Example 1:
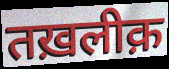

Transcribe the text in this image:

तख़लीक़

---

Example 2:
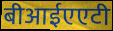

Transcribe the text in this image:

बीआईएएटी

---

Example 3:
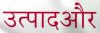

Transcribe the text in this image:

उत्पादऔर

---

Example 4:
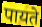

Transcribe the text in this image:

पायते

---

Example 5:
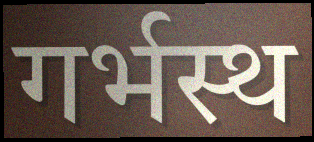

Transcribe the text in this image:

गर्भस्‍थ